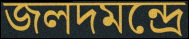
জলদমন্দ্রে